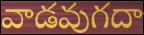
వాడవుగదా